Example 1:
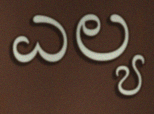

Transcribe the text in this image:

ಎಲ್ಯ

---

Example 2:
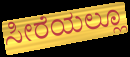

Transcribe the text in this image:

ಸೀರೆಯಲ್ಲೂ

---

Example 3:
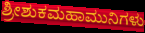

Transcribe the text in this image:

ಶ್ರೀಶುಕಮಹಾಮುನಿಗಳು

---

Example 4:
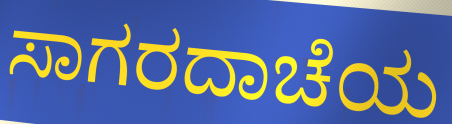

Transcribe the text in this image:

ಸಾಗರದಾಚೆಯ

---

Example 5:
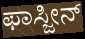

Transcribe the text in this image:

ಫಾಸ್ಜೀನ್